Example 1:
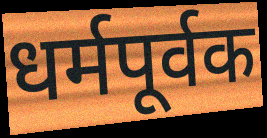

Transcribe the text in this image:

धर्मपूर्वक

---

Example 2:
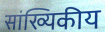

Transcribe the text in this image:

सांख्यिकीय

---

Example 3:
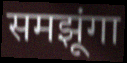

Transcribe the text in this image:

समझूंगा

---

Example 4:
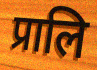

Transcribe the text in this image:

प्रालि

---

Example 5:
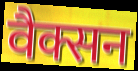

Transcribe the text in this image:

वैक्सन